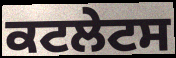
ਕਟਲੇਟਸ